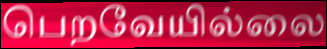
பெறவேயில்லை